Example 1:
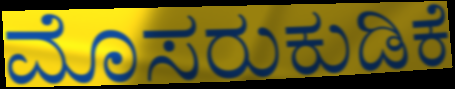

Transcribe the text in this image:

ಮೊಸರುಕುಡಿಕೆ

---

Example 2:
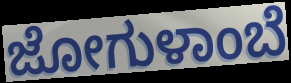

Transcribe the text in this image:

ಜೋಗುಳಾಂಬೆ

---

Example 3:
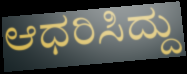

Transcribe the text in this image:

ಆಧರಿಸಿದ್ದು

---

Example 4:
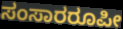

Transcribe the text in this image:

ಸಂಸಾರರೂಪೀ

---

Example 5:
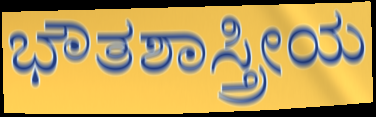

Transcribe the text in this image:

ಭೌತಶಾಸ್ತ್ರೀಯ